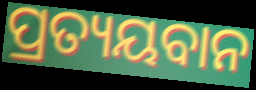
ପ୍ରତ୍ୟୟବାନ